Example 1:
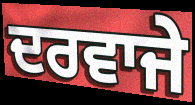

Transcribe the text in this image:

ਦਰਵਾਜੇ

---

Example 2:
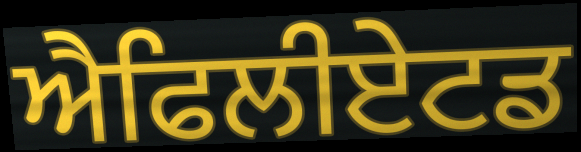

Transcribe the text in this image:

ਐਫਿਲੀਏਟਡ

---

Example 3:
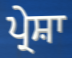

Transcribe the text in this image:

ਪ੍ਰੇਸ਼ਾ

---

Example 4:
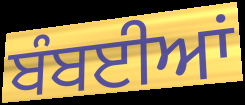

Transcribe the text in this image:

ਬੰਬਈਆਂ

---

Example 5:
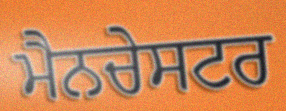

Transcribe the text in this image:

ਮੈਨਚੇਸਟਰ